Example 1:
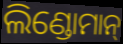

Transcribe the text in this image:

ଲିଣ୍ଡୋମାନ୍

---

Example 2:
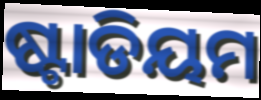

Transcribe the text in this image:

ଷ୍ଟାଡିୟମ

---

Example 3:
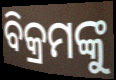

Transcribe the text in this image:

ବିକ୍ରମଙ୍କୁ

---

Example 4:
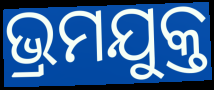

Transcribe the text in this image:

ଭ୍ରମଯୁକ୍ତ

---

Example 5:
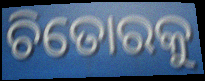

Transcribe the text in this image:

ଚିତୋରକୁ